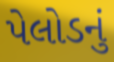
પેલોડનું